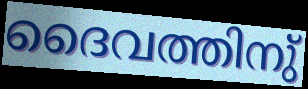
ദൈവത്തിനു്